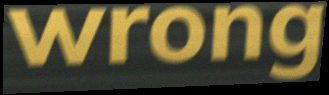
wrong